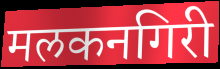
मलकनगिरी